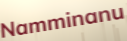
Namminanu